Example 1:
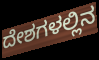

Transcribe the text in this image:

ದೇಶಗಳಲ್ಲಿನ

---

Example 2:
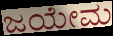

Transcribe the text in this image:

ಜಯೇಮ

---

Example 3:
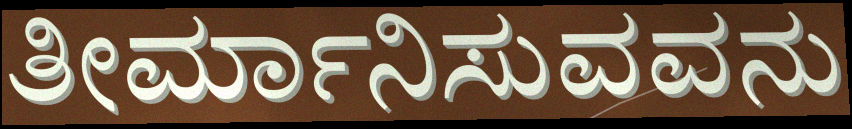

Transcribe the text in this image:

ತೀರ್ಮಾನಿಸುವವನು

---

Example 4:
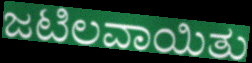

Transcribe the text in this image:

ಜಟಿಲವಾಯಿತು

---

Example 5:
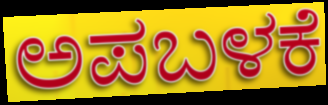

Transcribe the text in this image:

ಅಪಬಳಕೆ